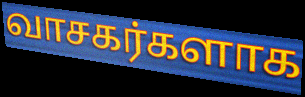
வாசகர்களாக